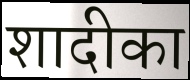
शादीका